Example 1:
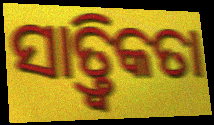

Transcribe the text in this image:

ସାତ୍ତ୍ଵିକତା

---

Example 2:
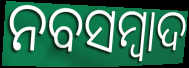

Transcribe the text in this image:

ନବସମ୍ବାଦ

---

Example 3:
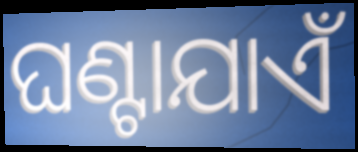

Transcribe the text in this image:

ଘଣ୍ଟାଯାଏଁ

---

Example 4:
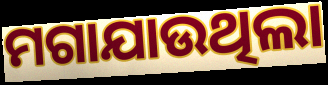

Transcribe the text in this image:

ମଗାଯାଉଥିଲା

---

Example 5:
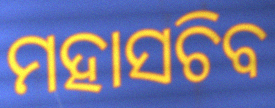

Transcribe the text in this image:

ମହାସଚିବ